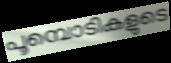
പൂമ്പൊടികളുടെ